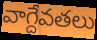
వాగ్దేవతలు